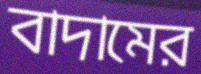
বাদামের